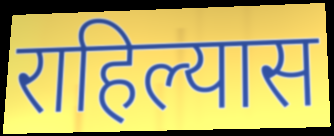
राहिल्यास